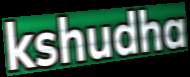
kshudha